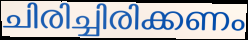
ചിരിച്ചിരിക്കണം